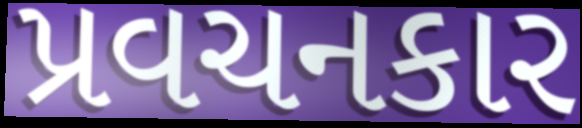
પ્રવચનકાર